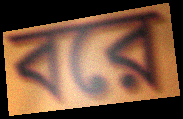
বরে